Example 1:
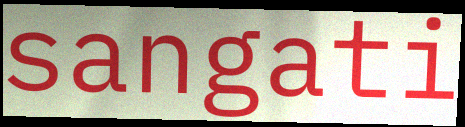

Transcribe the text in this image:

sangati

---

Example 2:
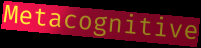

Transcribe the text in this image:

Metacognitive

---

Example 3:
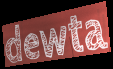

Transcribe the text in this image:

dewta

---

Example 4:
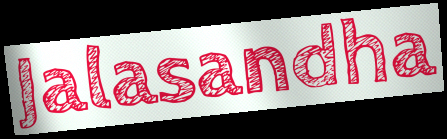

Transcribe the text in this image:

Jalasandha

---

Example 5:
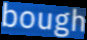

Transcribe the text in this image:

bough